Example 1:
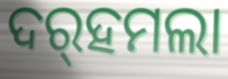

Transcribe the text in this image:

ଦର୍‌ହମଲା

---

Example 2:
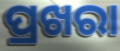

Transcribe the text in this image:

ପ୍ରଖରା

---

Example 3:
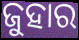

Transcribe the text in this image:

ଜୁହାର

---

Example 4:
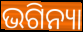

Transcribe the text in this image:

ଭଗିନ୍ୟା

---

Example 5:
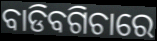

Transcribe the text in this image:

ବାଡିବଗିଚାରେ